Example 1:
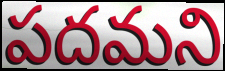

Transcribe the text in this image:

పదమని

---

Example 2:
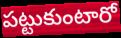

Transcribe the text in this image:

పట్టుకుంటారో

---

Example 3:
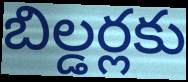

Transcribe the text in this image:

బిల్డర్లకు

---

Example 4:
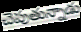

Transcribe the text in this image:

చెపుతున్నాడు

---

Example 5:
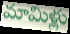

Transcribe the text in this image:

మామిళ్లు